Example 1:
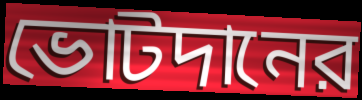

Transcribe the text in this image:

ভোটদানের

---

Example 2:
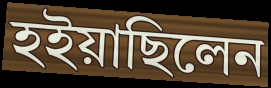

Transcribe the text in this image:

হইয়াছিলেন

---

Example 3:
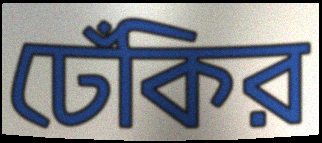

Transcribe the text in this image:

ঢেঁকির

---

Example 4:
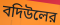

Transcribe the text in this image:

বদিউলের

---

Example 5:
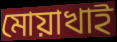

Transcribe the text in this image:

মোয়াখাই